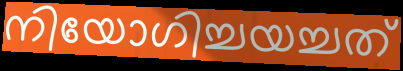
നിയോഗിച്ചയച്ചത്